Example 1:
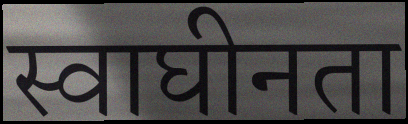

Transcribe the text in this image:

स्वाघीनता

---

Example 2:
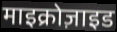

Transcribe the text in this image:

माइक्रोज़ाइड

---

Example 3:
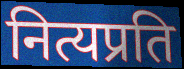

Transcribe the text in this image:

नित्यप्रति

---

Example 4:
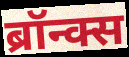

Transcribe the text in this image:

ब्रॉन्क्स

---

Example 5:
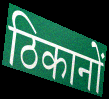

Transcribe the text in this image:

ठिकानों